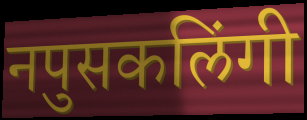
नपुसकलिंगी